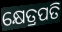
କ୍ଷେତ୍ରପତି